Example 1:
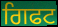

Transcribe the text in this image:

ਗਿਫਟ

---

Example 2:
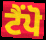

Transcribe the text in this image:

ਟੈਂਪੋ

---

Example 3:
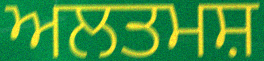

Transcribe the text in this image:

ਅਲਤਮਸ਼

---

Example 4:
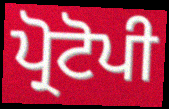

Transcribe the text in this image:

ਪ੍ਰੋਟੋਪੀ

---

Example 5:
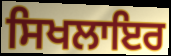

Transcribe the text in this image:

ਸਿਖਲਾਇਰ